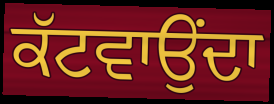
ਕੱਟਵਾਉਂਦਾ